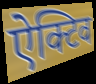
ऐक्टिव